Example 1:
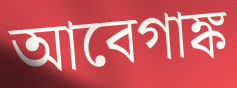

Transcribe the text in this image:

আবেগাঙ্ক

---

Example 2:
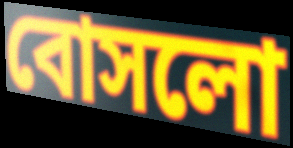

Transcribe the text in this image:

বোসলো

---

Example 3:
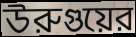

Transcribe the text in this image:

উরুগুয়ের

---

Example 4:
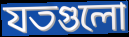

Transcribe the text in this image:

যতগুলো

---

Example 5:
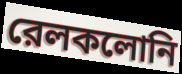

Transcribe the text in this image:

রেলকলোনি